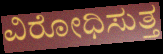
ವಿರೋಧಿಸುತ್ತ